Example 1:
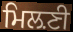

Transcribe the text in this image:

ਮਿਲ਼ਣੀ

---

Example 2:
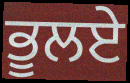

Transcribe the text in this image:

ਭੂਲਏ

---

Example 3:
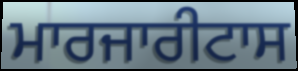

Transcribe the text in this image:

ਮਾਰਜਾਰੀਟਾਸ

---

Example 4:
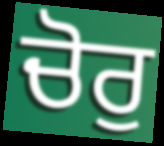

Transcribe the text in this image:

ਚੋਰੁ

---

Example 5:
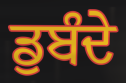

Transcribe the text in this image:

ਡੁਬੰਦੇ